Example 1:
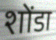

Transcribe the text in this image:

शोंडा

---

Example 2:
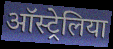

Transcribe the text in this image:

ऑस्‍ट्रेलिया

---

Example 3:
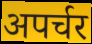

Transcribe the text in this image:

अपर्चर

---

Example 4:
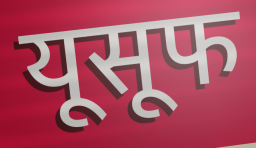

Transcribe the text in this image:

यूसूफ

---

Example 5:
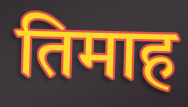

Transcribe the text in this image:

तिमाह